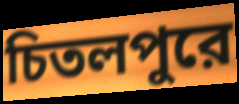
চিতলপুরে